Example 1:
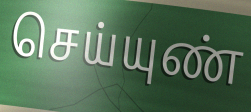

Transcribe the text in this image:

செய்யுண்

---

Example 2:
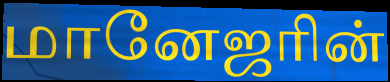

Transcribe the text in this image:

மானேஜரின்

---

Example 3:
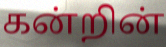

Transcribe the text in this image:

கன்றின்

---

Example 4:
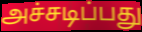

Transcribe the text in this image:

அச்சடிப்பது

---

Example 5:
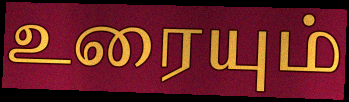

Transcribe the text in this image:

உரையும்